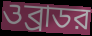
ওব্রাডর